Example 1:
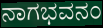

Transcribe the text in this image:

ನಾಗಭವನಂ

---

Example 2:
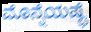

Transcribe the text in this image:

ಮೊನ್ನೆಯಷ್ಟೆ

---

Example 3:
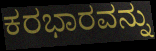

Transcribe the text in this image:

ಕರಭಾರವನ್ನು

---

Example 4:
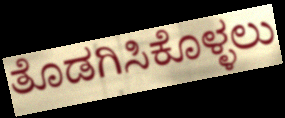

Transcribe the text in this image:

ತೊಡಗಿಸಿಕೊಳ್ಳಲು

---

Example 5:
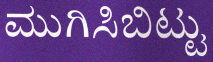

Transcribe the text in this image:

ಮುಗಿಸಿಬಿಟ್ಟು